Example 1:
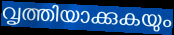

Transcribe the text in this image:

വൃത്തിയാക്കുകയും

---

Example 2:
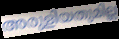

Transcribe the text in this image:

അരുളിയതുമില്ല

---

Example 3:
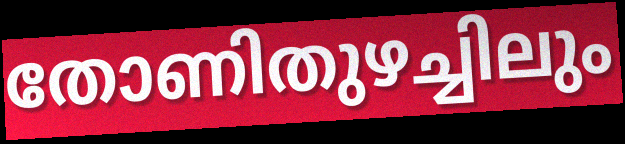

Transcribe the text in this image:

തോണിതുഴച്ചിലും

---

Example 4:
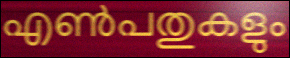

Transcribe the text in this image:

എൺപതുകളും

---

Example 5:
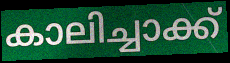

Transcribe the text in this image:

കാലിച്ചാക്ക്